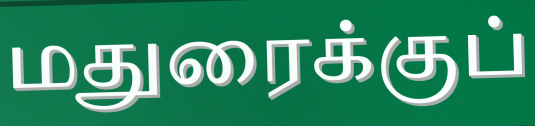
மதுரைக்குப்